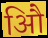
औि